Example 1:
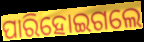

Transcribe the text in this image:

ପାରିହୋଇଗଲେ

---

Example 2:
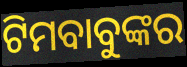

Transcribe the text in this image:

ଟିମବାବୁଙ୍କର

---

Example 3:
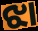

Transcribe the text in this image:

ଝା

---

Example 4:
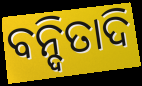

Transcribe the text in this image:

ବନ୍ଦିତାଦି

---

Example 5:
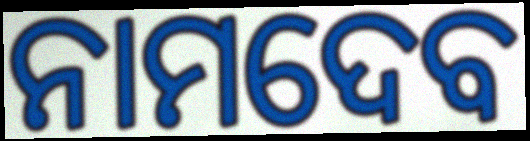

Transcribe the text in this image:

ନାମଦେବ